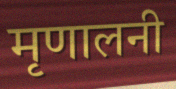
मृणालनी